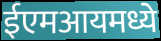
ईएमआयमध्ये